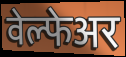
वेल्फेअर